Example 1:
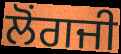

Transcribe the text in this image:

ਲੋਂਗਜੀ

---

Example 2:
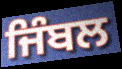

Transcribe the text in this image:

ਜਿੰਬਲ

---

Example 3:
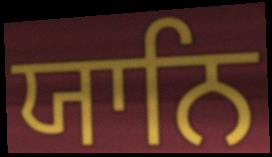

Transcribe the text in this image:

ਯਾਨਿ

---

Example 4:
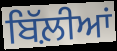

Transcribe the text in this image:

ਬਿੱਲ਼ੀਆਂ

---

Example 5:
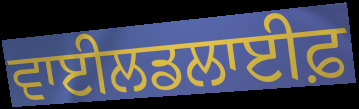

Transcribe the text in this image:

ਵਾਈਲਡਲਾਈਫ਼